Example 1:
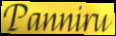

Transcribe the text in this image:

Panniru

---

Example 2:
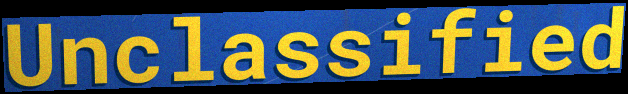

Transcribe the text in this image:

Unclassified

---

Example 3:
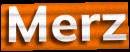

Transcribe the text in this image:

Merz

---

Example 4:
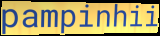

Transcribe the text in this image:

pampinhii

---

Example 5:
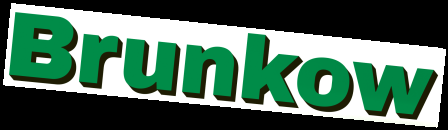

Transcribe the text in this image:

Brunkow